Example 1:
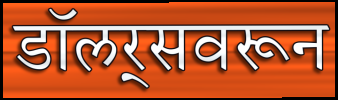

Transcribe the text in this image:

डॉलर्सवरून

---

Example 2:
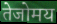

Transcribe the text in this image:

तेजोमय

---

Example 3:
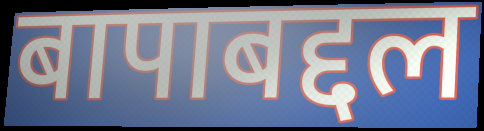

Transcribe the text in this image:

बापाबद्दल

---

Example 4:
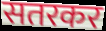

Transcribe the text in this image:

सतरकर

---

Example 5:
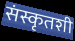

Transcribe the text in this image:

संस्कृतशी